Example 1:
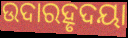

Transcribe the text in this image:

ଉଦାରହୃଦୟା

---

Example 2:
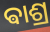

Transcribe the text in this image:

ଵାଶ୍ର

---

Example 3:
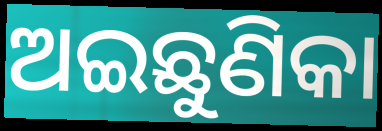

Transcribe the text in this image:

ଅଇଛୁଣିକା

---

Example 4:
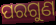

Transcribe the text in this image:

ପରଗୁଣ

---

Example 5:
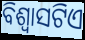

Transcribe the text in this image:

ବିଶ୍ଵାସଟିଏ